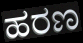
ಹರಣ